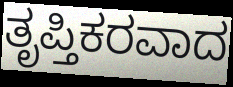
ತೃಪ್ತಿಕರವಾದ